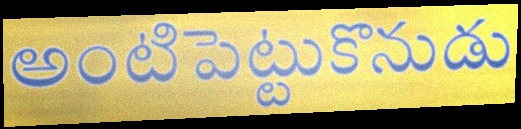
అంటిపెట్టుకొనుడు